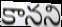
కానని